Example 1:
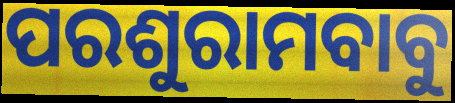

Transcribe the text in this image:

ପରଶୁରାମବାବୁ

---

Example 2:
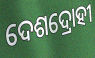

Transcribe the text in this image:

ଦେଶଦ୍ରୋହୀ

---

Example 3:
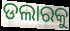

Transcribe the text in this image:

ଡଲାରକୁ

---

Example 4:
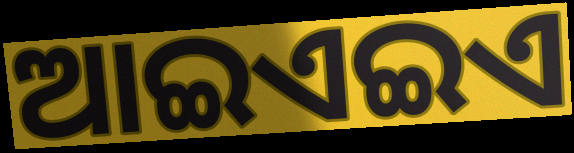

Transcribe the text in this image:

ଆଇଏଇଏ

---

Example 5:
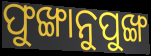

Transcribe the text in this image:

ଫୁଙ୍ଖାନୁପୁଙ୍ଖ